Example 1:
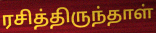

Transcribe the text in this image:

ரசித்திருந்தாள்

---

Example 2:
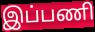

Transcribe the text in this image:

இப்பணி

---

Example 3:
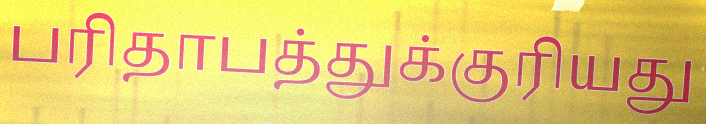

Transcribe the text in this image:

பரிதாபத்துக்குரியது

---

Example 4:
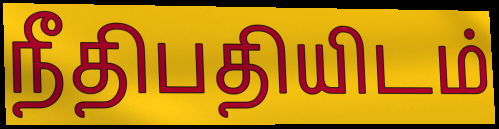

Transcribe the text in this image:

நீதிபதியிடம்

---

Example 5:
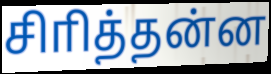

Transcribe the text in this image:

சிரித்தன்ன